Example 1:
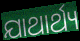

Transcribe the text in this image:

ଯାଥାର୍ଥ୍ୟ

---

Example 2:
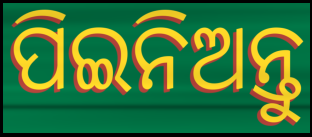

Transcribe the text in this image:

ପିଇନିଅନ୍ତୁ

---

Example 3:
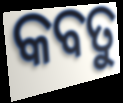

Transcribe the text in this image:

କବତୁ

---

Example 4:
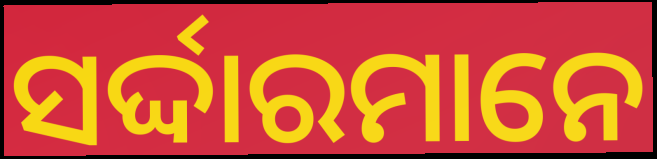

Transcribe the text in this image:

ସର୍ଦ୍ଦାରମାନେ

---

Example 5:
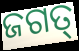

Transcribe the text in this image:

ଜଗତ୍